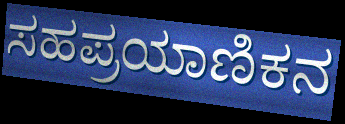
ಸಹಪ್ರಯಾಣಿಕನ